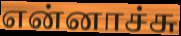
என்னாச்சு